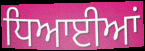
ਧਿਆਈਆਂ